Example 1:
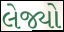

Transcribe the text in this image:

લેજ્યો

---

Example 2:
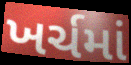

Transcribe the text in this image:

ખર્ચમાં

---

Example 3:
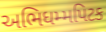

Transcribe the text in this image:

અભિધમ્મપિટક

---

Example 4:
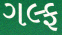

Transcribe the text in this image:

ગલ્ફ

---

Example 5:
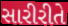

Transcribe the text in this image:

સારીરીતે